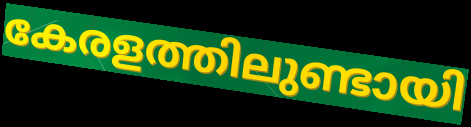
കേരളത്തിലുണ്ടായി